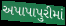
અપાપાપુરીમાં